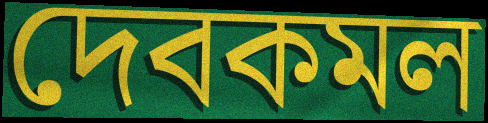
দেবকমল